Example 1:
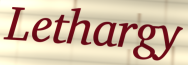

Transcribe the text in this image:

Lethargy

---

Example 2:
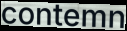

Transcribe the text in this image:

contemn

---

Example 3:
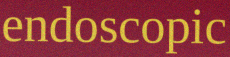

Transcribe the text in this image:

endoscopic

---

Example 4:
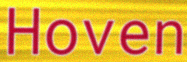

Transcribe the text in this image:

Hoven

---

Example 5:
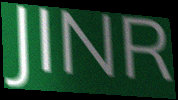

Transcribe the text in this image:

JINR